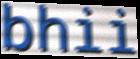
bhii